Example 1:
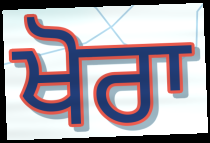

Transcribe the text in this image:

ਖੋਰਾ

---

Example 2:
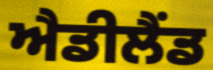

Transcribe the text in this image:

ਐਡੀਲੈਂਡ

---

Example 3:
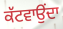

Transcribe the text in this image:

ਕੱਟਵਾਉਂਦਾ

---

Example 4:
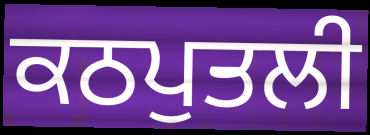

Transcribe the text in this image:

ਕਠਪੁਤਲੀ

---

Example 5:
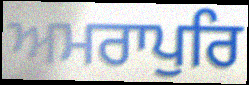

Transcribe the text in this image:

ਅਮਰਾਪੁਰਿ